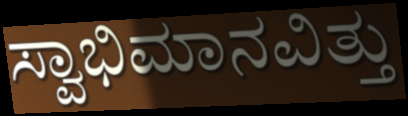
ಸ್ವಾಭಿಮಾನವಿತ್ತು